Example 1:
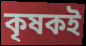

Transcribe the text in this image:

কৃষকই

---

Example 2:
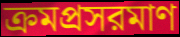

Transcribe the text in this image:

ক্রমপ্রসরমাণ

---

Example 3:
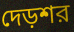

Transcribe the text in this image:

দেড়শর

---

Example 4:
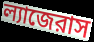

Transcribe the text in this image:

ল্যাজেরাস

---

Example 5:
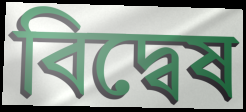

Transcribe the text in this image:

বিদ্বেষ